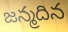
జన్మదిన